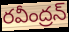
రవీంద్రన్